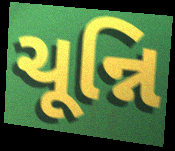
ચૂન્નિ